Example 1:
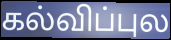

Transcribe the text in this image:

கல்விப்புல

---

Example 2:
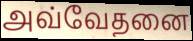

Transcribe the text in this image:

அவ்வேதனை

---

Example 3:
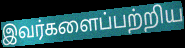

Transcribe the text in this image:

இவர்களைப்பற்றிய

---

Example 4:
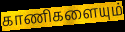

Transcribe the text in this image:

காணிகளையும்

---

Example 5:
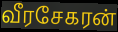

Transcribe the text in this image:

வீரசேகரன்